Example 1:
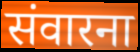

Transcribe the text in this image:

संवारना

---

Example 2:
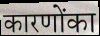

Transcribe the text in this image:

कारणोंका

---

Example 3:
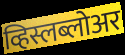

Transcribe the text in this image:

व्हिस्लब्लोअर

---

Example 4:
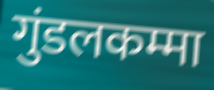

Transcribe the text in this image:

गुंडलकम्मा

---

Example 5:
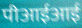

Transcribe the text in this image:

पीआईआई